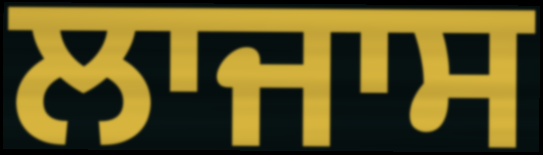
ਲਾਜਾਸ